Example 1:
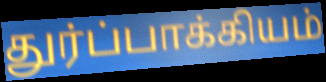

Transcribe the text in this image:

துர்ப்பாக்கியம்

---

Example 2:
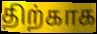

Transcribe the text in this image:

திற்காக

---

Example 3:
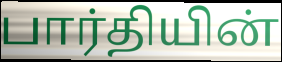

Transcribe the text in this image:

பார்தியின்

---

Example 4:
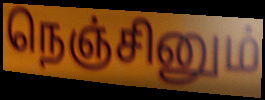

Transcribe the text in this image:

நெஞ்சினும்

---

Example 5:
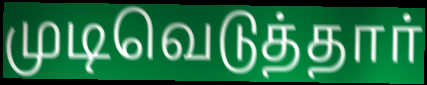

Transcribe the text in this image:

முடிவெடுத்தார்